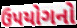
ઉપયોગનો